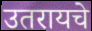
उतरायचे